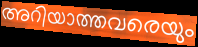
അറിയാത്തവരെയും